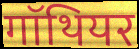
गॉथियर